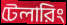
টেলারিং